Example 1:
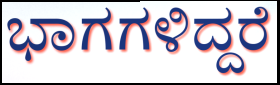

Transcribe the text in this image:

ಭಾಗಗಳಿದ್ದರೆ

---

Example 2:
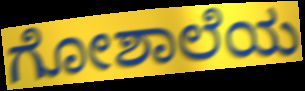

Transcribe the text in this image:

ಗೋಶಾಲೆಯ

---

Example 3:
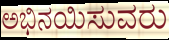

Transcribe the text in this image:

ಅಭಿನಯಿಸುವರು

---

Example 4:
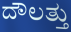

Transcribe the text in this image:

ದೌಲತ್ತು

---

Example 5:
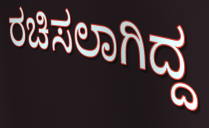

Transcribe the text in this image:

ರಚಿಸಲಾಗಿದ್ದ